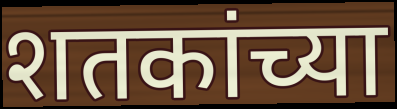
शतकांच्या